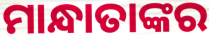
ମାନ୍ଧାତାଙ୍କର